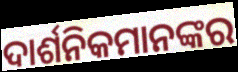
ଦାର୍ଶନିକମାନଙ୍କର